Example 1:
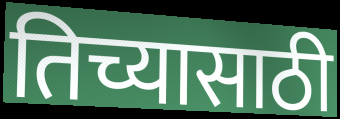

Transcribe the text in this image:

तिच्यासाठी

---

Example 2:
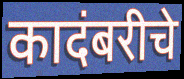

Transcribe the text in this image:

कादंबरीचे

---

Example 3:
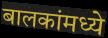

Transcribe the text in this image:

बालकांमध्ये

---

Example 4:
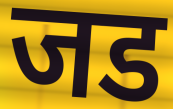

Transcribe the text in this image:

जड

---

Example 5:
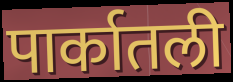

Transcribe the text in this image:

पार्कातली